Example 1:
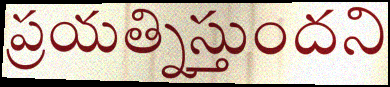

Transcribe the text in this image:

ప్రయత్నిస్తుందని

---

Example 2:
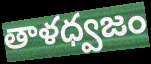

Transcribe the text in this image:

తాళధ్వజం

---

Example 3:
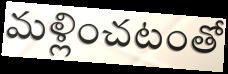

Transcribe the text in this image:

మళ్లించటంతో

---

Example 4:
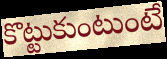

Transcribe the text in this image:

కొట్టుకుంటుంటే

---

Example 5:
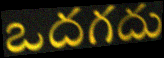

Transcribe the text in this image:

ఒదగదు